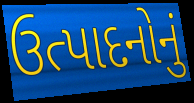
ઉત્પાદનોનું